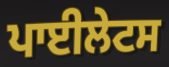
ਪਾਈਲੇਟਸ